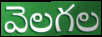
వెలగల